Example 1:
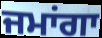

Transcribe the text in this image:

ਜਮਾਂਗਾ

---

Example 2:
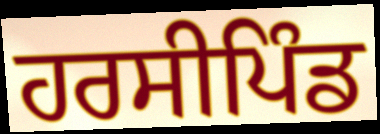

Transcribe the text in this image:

ਹਰਸੀਪਿੰਡ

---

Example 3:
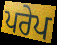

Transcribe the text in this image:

ਪਰੇਪ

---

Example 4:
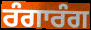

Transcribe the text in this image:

ਰੰਗਾਰੰਗ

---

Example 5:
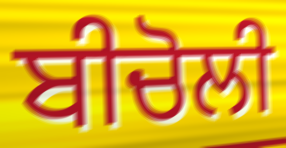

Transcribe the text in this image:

ਬੀਚੋਲੀ